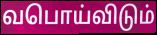
வபொய்விடும்